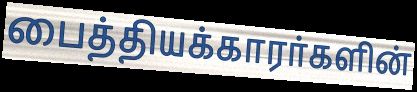
பைத்தியக்காரர்களின்